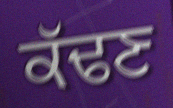
ਕੱਢਣ